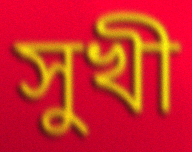
সুখী